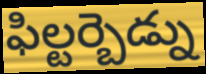
ఫిల్టర్బెడ్ను